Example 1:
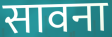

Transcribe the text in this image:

सावना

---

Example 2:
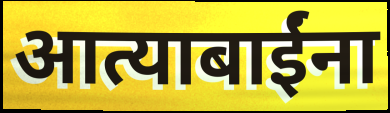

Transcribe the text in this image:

आत्याबाईंना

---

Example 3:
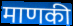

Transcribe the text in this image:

माणकी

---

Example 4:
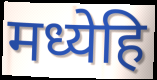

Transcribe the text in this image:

मध्येहि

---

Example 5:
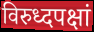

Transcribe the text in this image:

विरुध्दपक्षां